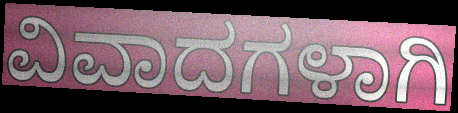
ವಿವಾದಗಳಾಗಿ